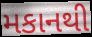
મકાનથી